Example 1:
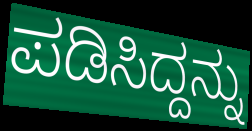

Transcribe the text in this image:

ಪಡಿಸಿದ್ದನ್ನು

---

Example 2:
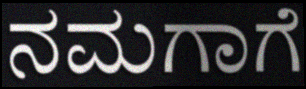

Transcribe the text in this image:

ನಮಗಾಗೆ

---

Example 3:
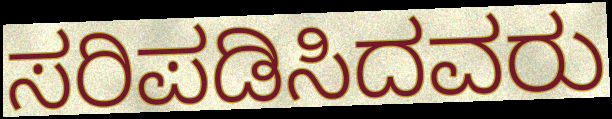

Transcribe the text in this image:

ಸರಿಪಡಿಸಿದವರು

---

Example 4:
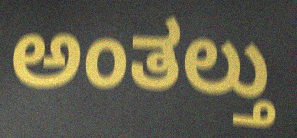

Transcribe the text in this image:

ಅಂತಲ್ತು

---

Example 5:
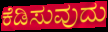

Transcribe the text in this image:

ಕೆಡಿಸುವುದು